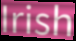
Irish